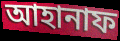
আহানাফ